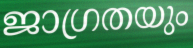
ജാഗ്രതയും